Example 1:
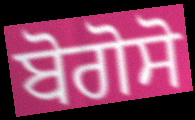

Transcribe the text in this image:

ਬੋਗੋਸੋ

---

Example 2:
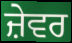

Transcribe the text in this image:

ਜ਼ੇਵਰ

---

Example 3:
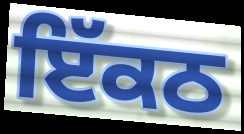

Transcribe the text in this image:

ਇੱਕਠ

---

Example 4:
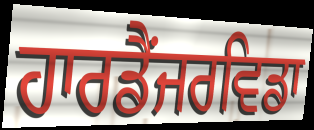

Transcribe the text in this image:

ਹਾਰਡੈਂਜਰਵਿਡਾ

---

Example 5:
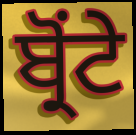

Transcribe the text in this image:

ਬ੍ਰੋਂਟੇ